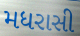
મધરાસી